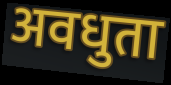
अवधुता